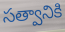
సత్వానికి